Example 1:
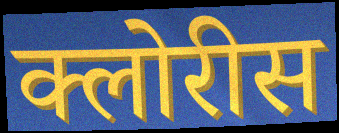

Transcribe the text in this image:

क्लोरीस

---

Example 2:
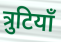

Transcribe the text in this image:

त्रुटियाँ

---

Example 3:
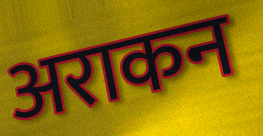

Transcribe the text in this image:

अराकन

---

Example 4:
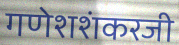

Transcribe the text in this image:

गणेशशंकरजी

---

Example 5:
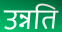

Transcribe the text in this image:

उन्नति